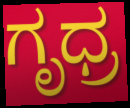
ಗೃಧ್ರ